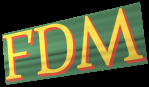
FDM